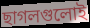
ছাগলগুলোই